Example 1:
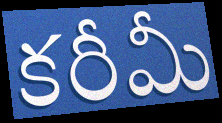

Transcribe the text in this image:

కరీమీ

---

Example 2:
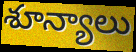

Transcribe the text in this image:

శూన్యాలు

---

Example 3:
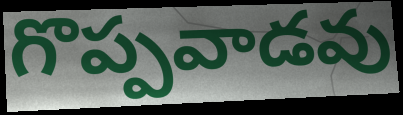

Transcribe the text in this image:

గొప్పవాడవు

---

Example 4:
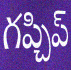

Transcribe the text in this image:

గప్చిప్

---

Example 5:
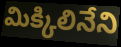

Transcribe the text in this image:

మిక్కిలినేని